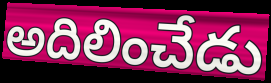
అదిలించేడు